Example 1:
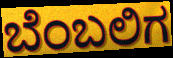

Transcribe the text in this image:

ಬೆಂಬಲಿಗ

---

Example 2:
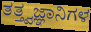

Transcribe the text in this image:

ತತ್ತ್ವಜ್ಞಾನಿಗಳ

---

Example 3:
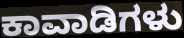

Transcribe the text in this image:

ಕಾವಾಡಿಗಳು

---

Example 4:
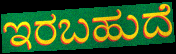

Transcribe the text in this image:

ಇರಬಹುದೆ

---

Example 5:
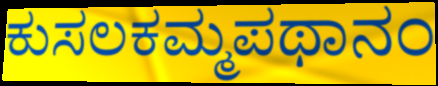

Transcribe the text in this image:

ಕುಸಲಕಮ್ಮಪಥಾನಂ